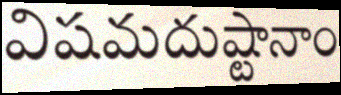
విషమదుష్టానాం